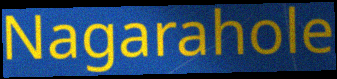
Nagarahole